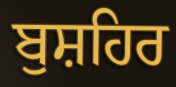
ਬੁਸ਼ਹਿਰ